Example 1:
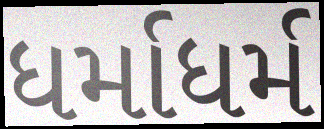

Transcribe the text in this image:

ધર્માધર્મ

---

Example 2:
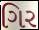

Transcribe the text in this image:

ગિર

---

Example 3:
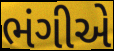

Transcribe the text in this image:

ભંગીએ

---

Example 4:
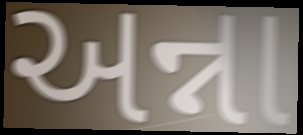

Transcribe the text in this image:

અન્ના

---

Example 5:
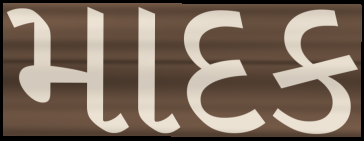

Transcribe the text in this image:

માદક